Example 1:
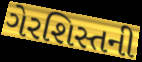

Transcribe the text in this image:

ગેરશિસ્તની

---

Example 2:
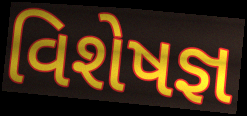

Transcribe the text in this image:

વિશેષજ્ઞ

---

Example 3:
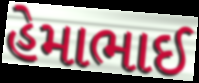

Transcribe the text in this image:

હેમાભાઈ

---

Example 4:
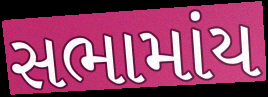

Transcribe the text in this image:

સભામાંય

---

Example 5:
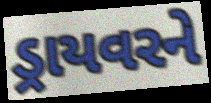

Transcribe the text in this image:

ડ્રાયવરને